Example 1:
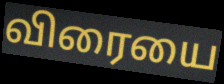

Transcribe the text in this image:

விரையை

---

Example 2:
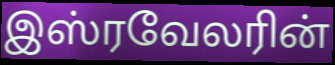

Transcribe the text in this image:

இஸ்ரவேலரின்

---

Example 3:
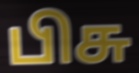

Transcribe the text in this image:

பிசு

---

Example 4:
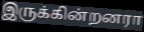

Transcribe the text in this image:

இருக்கின்றனரா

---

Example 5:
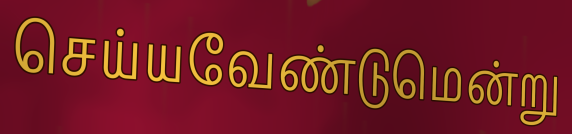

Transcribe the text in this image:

செய்யவேண்டுமென்று